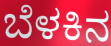
ಬೆಳಕಿನ